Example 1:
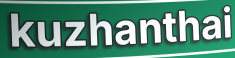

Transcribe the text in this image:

kuzhanthai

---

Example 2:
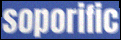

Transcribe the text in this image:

soporific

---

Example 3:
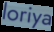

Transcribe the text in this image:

loriya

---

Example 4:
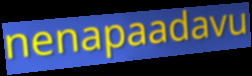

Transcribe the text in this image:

nenapaadavu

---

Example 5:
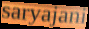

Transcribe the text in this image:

saryajani